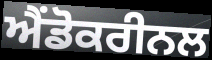
ਐਂਡੋਕਰੀਨਲ